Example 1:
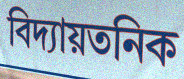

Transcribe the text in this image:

বিদ্যায়তনিক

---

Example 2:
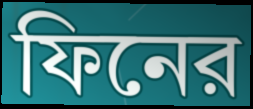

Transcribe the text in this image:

ফিনের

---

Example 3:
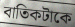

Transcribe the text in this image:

বাতিকটাকে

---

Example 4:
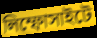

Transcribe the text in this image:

লিম্ফোসাইটে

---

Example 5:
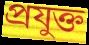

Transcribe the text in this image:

প্রযুক্ত